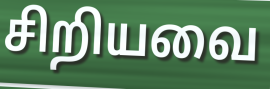
சிறியவை